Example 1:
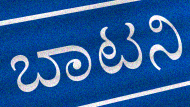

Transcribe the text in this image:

ಬಾಟನಿ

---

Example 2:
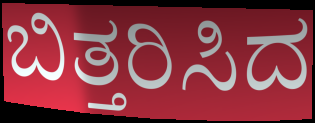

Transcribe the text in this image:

ಬಿತ್ತರಿಸಿದ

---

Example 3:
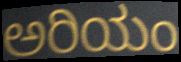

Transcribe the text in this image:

ಅರಿಯಂ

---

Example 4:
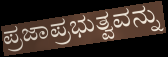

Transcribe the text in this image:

ಪ್ರಜಾಪ್ರಭುತ್ವವನ್ನು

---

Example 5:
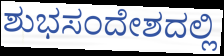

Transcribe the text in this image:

ಶುಭಸಂದೇಶದಲ್ಲಿ